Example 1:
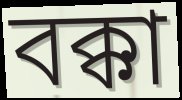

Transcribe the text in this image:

বক্কা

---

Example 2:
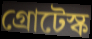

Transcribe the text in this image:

গ্রোটেস্ক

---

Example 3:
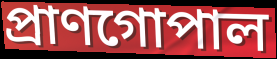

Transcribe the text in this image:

প্রাণগোপাল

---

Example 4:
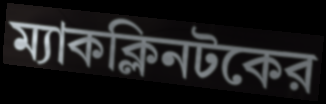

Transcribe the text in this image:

ম্যাকক্লিনটকের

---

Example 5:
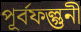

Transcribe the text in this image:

পূর্বফল্গুনী